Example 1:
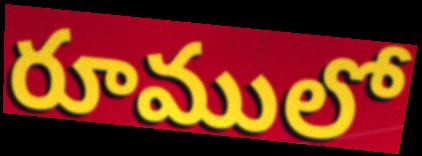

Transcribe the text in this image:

రూములో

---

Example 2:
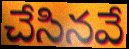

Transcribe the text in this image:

చేసినవే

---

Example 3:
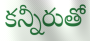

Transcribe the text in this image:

కన్నీరుతో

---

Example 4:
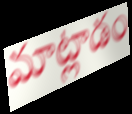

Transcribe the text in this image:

మాట్లాడం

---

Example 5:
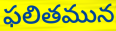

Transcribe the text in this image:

ఫలితమున